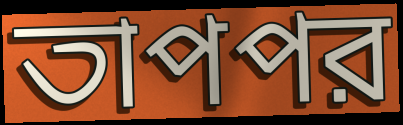
তাপপর